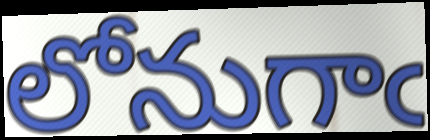
లోనుగాఁ